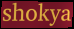
shokya